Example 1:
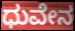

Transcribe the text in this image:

ಧುವೇನ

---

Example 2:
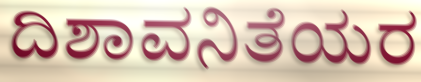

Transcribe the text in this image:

ದಿಶಾವನಿತೆಯರ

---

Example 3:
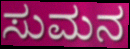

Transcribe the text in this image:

ಸುಮನ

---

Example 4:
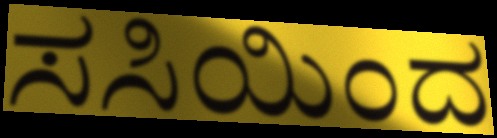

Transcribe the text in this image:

ಸಸಿಯಿಂದ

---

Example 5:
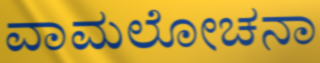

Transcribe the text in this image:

ವಾಮಲೋಚನಾ